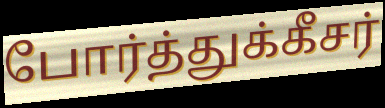
போர்த்துக்கீசர்